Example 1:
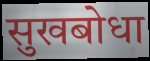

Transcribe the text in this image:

सुखबोधा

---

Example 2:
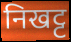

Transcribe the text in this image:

निखट्ट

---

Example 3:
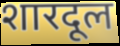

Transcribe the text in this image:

शारदूल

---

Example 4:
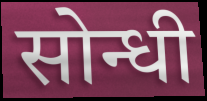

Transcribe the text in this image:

सोन्धी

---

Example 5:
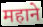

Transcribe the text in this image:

महाने